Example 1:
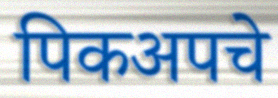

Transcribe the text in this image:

पिकअपचे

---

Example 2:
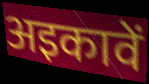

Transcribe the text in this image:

अइकावें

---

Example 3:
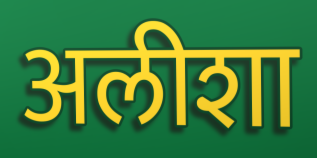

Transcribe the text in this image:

अलीशा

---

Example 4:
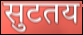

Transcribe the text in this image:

सुटतय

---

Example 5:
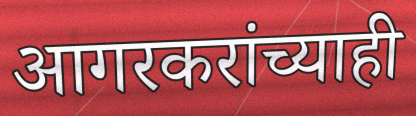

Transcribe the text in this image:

आगरकरांच्याही